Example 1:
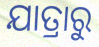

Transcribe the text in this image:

ଯାତ୍ରାରୁ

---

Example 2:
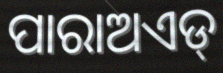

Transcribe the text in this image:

ପାରାଅଏଡ୍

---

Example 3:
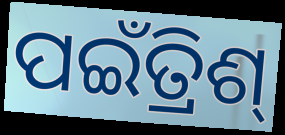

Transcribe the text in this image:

ପଇଁତ୍ରିଶ୍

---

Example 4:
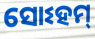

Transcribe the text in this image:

ସୋଽହମ୍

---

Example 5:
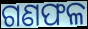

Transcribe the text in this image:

ଗଣଫଳ